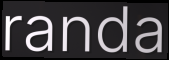
randa